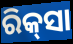
ରିକ୍‌ସା